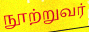
நூற்றுவர்